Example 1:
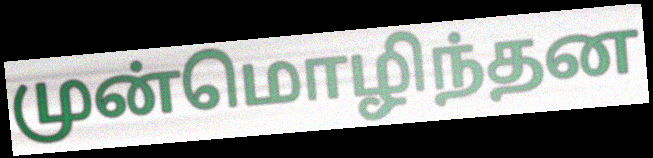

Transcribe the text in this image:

முன்மொழிந்தன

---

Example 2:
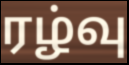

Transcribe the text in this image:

ரழ்வு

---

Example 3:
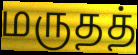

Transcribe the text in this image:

மருதத்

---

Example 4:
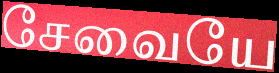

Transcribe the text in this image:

சேவையே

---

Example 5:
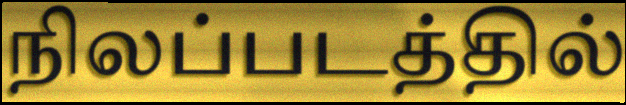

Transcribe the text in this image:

நிலப்படத்தில்